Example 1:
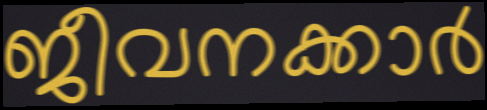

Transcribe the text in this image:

ജീവനക്കാർ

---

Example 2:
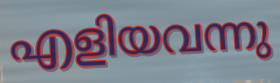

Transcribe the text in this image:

എളിയവന്നു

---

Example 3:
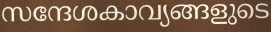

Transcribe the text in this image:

സന്ദേശകാവ്യങ്ങളുടെ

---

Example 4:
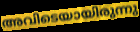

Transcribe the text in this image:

അവിടെയായിരുന്നു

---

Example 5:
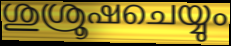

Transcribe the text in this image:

ശുശ്രൂഷചെയ്യും